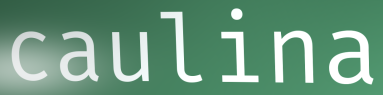
caulina